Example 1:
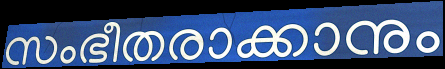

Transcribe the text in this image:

സംഭീതരാക്കാനും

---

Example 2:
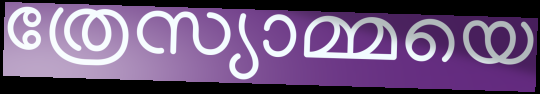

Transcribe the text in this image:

ത്രേസ്യാമ്മയെ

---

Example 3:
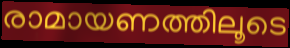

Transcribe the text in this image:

രാമായണത്തിലൂടെ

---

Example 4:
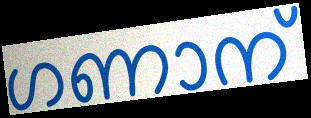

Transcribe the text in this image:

ഗണാന്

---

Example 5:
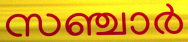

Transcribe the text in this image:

സഞ്ചാർ